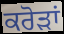
ਕਰੋੜਾਂ